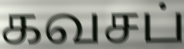
கவசப்